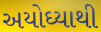
અયોઘ્યાથી